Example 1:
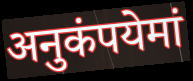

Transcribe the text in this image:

अनुकंपयेमां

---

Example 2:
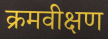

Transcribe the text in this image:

क्रमवीक्षण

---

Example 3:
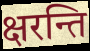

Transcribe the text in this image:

क्षरन्ति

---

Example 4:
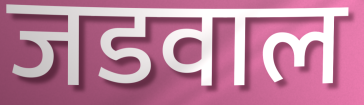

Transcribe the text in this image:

जडवाल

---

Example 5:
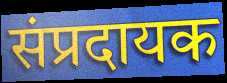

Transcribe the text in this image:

संप्रदायक